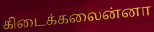
கிடைக்கலைன்னா